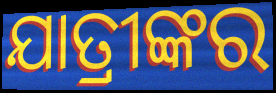
ଯାତ୍ରୀଙ୍କର